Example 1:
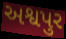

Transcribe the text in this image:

અશ્વપુર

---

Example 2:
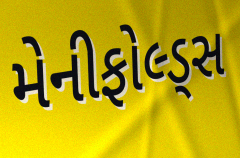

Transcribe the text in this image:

મેનીફોલ્ડ્સ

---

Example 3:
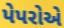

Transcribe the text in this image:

પેપરોએ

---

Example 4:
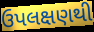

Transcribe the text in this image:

ઉપલક્ષણથી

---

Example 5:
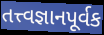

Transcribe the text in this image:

તત્ત્વજ્ઞાનપૂર્વક